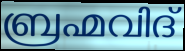
ബ്രഹ്മവിദ്